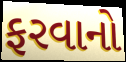
ફરવાનો